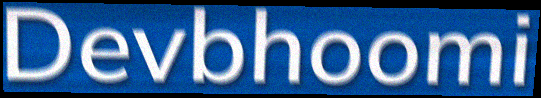
Devbhoomi